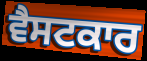
ਵੈਸਟਕਾਰ